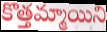
కొత్తమ్మాయిని